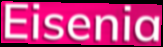
Eisenia